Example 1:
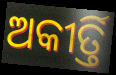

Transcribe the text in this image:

ଅକୀର୍ତ୍ତି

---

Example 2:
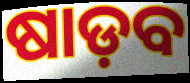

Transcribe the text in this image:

ଷାଡ଼ବ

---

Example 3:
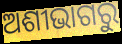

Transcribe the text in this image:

ଅଶୀଭାଗରୁ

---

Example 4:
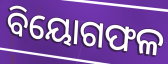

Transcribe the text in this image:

ବିୟୋଗଫଳ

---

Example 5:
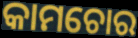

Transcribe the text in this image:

କାମଚୋର